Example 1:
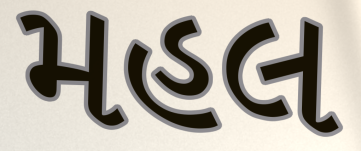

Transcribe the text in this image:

મહલ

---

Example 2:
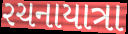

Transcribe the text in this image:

રચનાયાત્રા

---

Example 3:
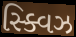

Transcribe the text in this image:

સ્ક્વિઝ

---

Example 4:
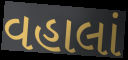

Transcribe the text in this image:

વહાલાં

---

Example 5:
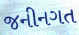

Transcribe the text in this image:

જનીનગત